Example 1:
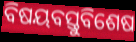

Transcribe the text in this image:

ବିଷୟବସ୍ତୁବିଶେଷ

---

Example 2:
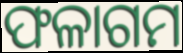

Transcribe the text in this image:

ଫଳାଗମ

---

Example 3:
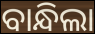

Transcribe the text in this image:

ବାନ୍ଧିଲା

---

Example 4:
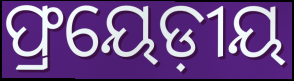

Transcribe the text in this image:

ଫ୍ରୟେଡ଼ୀୟ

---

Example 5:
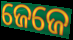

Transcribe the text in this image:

ଜେଜେ